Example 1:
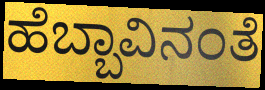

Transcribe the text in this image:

ಹೆಬ್ಬಾವಿನಂತೆ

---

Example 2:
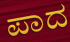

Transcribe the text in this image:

ಪಾದ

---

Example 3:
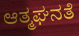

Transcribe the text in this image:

ಆತ್ಮಘನತೆ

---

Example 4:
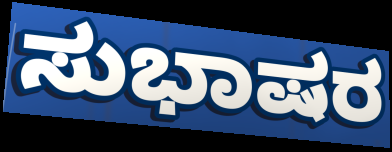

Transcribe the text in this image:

ಸುಭಾಷರ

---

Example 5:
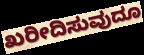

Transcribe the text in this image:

ಖರೀದಿಸುವುದೂ